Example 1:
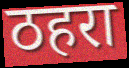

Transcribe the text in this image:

ठहरा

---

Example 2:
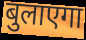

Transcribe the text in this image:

बुलाएगा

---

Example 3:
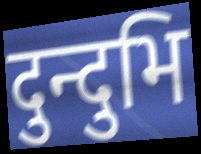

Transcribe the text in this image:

दुन्दुभि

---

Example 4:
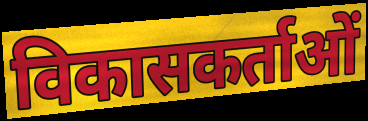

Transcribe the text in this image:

विकासकर्ताओं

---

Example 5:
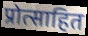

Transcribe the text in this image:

प्रोत्साहित